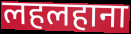
लहलहाना